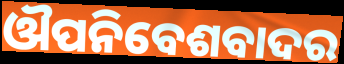
ଔପନିବେଶବାଦର